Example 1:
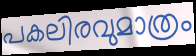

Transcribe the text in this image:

പകലിരവുമാത്രം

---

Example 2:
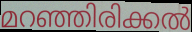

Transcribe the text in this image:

മറഞ്ഞിരിക്കൽ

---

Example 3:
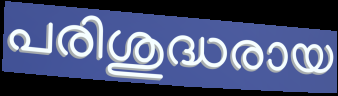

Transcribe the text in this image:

പരിശുദ്ധരായ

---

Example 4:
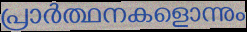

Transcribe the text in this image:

പ്രാർത്ഥനകളൊന്നും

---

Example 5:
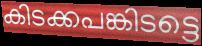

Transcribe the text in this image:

കിടക്കപങ്കിടട്ടെ